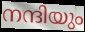
നന്ദിയും